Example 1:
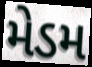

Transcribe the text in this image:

મેડમ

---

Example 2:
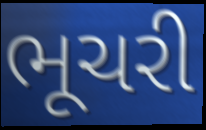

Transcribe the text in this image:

ભૂચરી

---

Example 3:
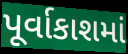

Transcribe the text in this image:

પૂર્વાકાશમાં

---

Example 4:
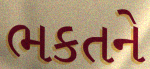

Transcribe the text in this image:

ભકતને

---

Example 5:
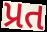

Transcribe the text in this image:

પ્રત